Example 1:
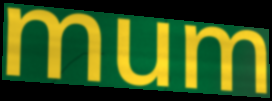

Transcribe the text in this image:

mum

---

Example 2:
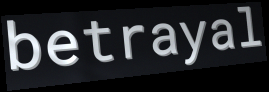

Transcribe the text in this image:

betrayal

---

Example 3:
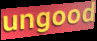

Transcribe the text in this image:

ungood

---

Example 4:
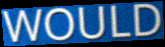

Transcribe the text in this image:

WOULD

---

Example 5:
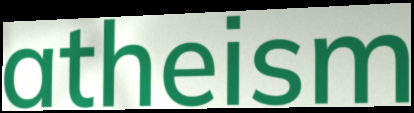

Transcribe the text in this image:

atheism